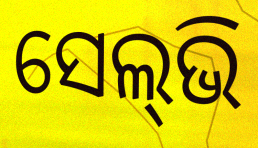
ସେଲ୍‌ଭି